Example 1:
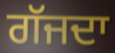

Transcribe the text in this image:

ਗੱਜਦਾ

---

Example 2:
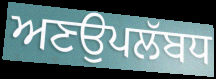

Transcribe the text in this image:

ਅਣਉਪਲੱਬਧ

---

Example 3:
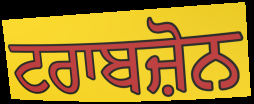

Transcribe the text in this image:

ਟਰਾਬਜ਼ੋਨ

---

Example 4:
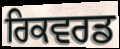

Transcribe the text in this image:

ਰਿਕਵਰਡ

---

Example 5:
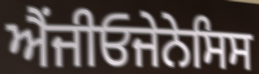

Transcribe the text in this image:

ਐਂਜੀਓਜੇਨੇਸਿਸ